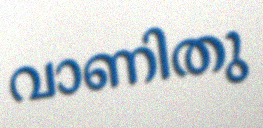
വാണിതു